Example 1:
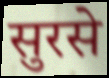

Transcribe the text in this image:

सुरसे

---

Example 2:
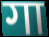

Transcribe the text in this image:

गा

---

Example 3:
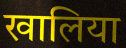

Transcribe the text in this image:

खालिया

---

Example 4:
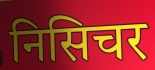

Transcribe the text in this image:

निसिचर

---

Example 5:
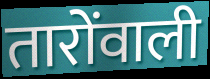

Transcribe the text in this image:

तारोंवाली